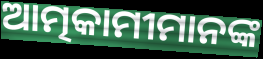
ଆତ୍ମକାମୀମାନଙ୍କ